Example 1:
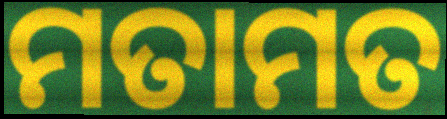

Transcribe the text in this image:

ମତାମତ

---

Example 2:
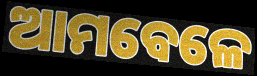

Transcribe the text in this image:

ଆମବେଳେ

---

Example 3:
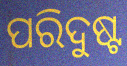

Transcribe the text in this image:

ପରିଦୁଷ୍ଟ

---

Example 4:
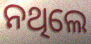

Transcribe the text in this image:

ନଥିଲେ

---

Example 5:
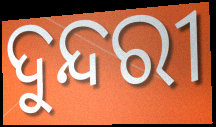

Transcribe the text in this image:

ଦୁନ୍ଦରୀ